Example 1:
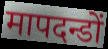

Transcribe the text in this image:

मापदन्डों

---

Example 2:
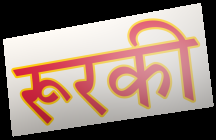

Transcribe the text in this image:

रूरकी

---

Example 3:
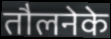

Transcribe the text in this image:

तौलनेके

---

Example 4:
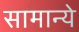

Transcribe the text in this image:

सामान्ये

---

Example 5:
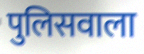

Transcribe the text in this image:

पुलिसवाला